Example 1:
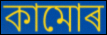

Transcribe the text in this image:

কামোৰ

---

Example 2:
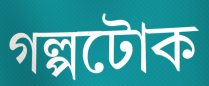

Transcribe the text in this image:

গল্পটোক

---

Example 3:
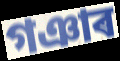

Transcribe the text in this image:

গঞাৰ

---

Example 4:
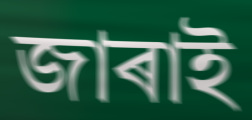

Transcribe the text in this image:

জাৰাই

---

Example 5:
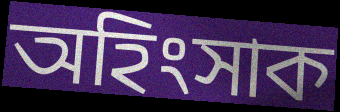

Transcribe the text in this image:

অহিংসাক